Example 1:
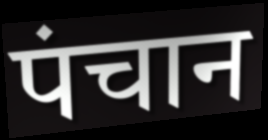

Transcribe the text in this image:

पंचान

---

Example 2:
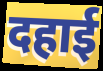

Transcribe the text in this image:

दहाई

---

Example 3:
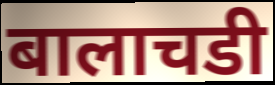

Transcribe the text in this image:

बालाचडी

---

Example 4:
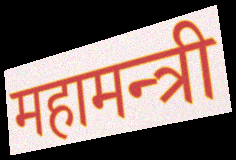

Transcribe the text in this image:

महामन्त्री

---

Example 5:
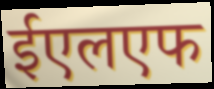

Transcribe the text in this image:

ईएलएफ